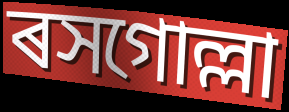
ৰসগোল্লা